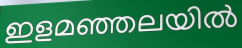
ഇളമഞ്ഞലയിൽ